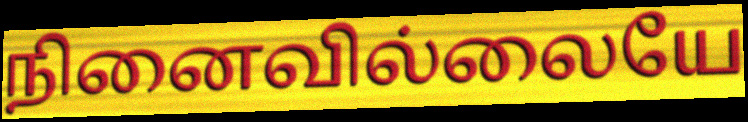
நினைவில்லையே